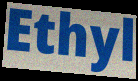
Ethyl